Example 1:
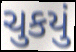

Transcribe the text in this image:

ચુકયું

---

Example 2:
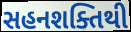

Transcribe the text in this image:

સહનશક્તિથી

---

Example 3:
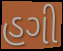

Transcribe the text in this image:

હગી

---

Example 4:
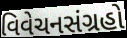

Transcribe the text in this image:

વિવેચનસંગ્રહો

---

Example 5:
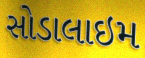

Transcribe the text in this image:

સોડાલાઇમ